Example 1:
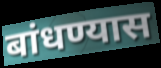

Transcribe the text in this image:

बांधण्यास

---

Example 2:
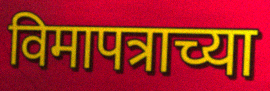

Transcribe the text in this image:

विमापत्राच्या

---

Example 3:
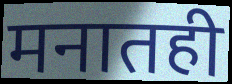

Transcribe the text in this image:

मनातही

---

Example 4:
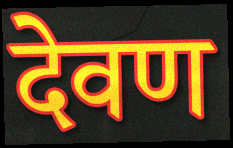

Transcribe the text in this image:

देवण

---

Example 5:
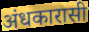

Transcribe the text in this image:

अंधकारासी